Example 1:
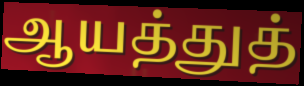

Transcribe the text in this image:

ஆயத்துத்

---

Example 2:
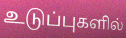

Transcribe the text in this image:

உடுப்புகளில்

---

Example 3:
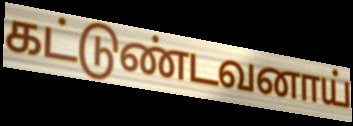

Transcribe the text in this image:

கட்டுண்டவனாய்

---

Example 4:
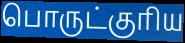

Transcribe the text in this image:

பொருட்குரிய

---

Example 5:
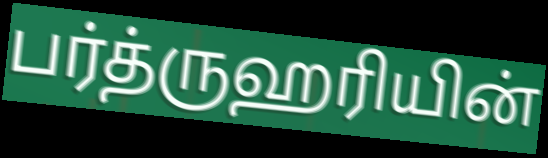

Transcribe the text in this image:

பர்த்ருஹரியின்